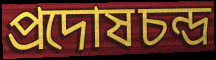
প্রদোষচন্দ্র